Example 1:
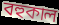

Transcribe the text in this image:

বহুকাল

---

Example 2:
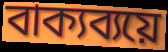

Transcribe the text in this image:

বাক্যব্যয়ে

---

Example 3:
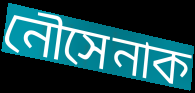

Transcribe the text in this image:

নৌসেনাক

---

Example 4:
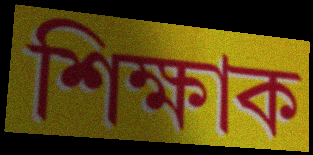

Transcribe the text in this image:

শিক্ষাক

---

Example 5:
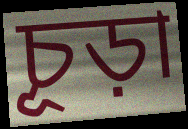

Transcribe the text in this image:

চূড়া